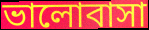
ভালোবাসা